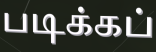
படிக்கப்